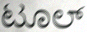
ಟೂಲ್